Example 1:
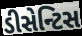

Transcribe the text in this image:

ડીસેન્ટિસ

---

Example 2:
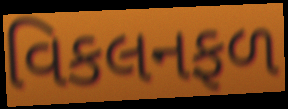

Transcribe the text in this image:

વિકલનફળ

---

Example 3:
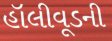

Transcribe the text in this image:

હૉલીવૂડની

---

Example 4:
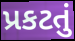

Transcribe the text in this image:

પ્રકટતું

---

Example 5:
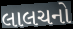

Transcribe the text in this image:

લાલચનો